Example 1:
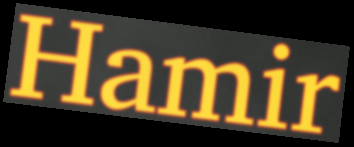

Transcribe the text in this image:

Hamir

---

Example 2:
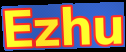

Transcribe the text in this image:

Ezhu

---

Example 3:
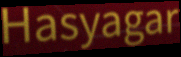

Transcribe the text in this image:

Hasyagar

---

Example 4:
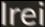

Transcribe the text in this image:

Irei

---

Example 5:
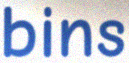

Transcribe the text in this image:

bins